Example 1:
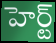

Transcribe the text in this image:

హెర్ట్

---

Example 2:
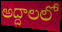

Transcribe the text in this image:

అద్దాలలో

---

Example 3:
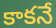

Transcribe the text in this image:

కాకనే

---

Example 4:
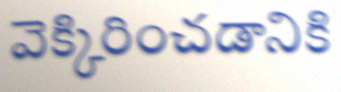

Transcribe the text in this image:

వెక్కిరించడానికి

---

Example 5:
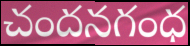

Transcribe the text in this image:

చందనగంధ